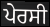
ਪੇਰਸੀ